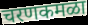
चरणकमळा